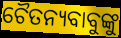
ଚୈତନ୍ୟବାବୁଙ୍କୁ